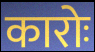
कारोः